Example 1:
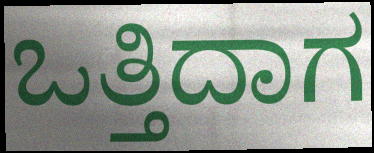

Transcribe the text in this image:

ಒತ್ತಿದಾಗ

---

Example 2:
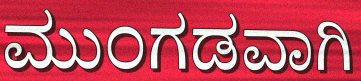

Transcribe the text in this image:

ಮುಂಗಡವಾಗಿ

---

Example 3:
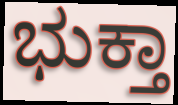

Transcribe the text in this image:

ಭುಕ್ತಾ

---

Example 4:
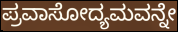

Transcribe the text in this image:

ಪ್ರವಾಸೋದ್ಯಮವನ್ನೇ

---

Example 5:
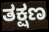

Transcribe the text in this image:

ತಕ್ಷಣ